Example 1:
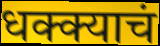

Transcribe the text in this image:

धक्क्याचं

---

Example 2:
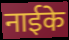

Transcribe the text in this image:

नाईके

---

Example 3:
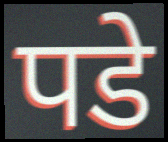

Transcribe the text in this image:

पडे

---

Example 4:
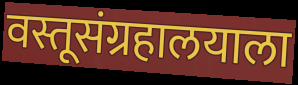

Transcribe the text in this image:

वस्तूसंग्रहालयाला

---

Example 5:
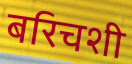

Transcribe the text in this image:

बरिचशी